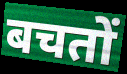
बचतों